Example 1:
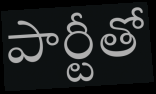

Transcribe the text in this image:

పార్టీతో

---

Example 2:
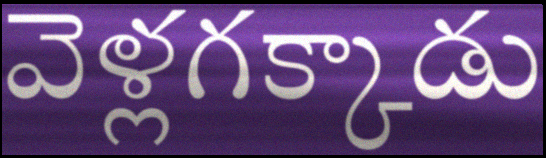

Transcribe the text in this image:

వెళ్లగక్కాడు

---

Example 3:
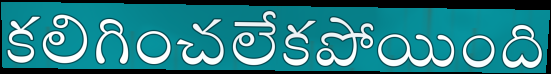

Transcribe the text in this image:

కలిగించలేకపోయింది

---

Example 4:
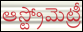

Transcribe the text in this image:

ఆస్ట్రోమెట్రీ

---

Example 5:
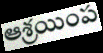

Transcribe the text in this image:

ఆశ్రయింప